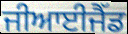
ਜੀਆਈਜੈੱਡ